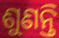
ଶୁଣନ୍ତି